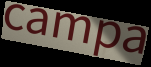
campa